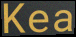
Kea